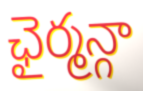
ఛైర్మన్గా